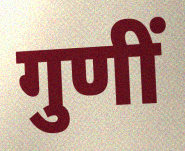
गुणीं